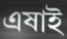
এষাই